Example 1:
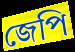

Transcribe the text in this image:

জেপি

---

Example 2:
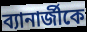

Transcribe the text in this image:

ব্যানার্জীকে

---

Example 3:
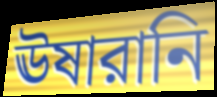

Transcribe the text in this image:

ঊষারানি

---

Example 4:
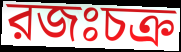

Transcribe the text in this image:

রজঃচক্র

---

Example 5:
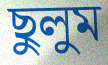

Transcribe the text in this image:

ছুলুম